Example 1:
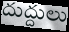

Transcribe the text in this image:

దుద్దులు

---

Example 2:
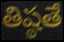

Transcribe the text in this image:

తిష్ఠతే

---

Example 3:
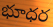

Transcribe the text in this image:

భూధర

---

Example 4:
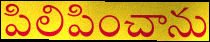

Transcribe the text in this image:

పిలిపించాను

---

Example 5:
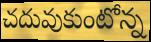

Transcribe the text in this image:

చదువుకుంటోన్న